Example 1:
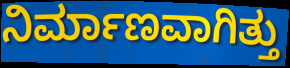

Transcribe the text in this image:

ನಿರ್ಮಾಣವಾಗಿತ್ತು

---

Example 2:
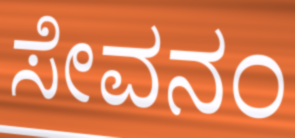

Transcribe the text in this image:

ಸೇವನಂ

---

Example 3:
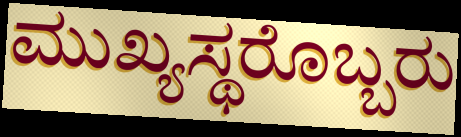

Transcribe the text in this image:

ಮುಖ್ಯಸ್ಥರೊಬ್ಬರು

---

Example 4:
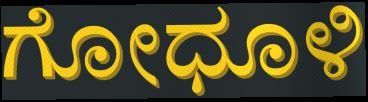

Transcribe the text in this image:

ಗೋಧೂಳಿ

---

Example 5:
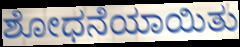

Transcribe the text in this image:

ಶೋಧನೆಯಾಯಿತು